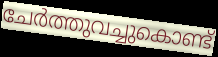
ചേർത്തുവച്ചുകൊണ്ട്